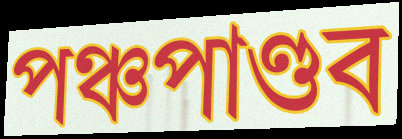
পঞ্চপাণ্ডব